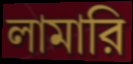
লামারি